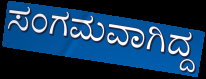
ಸಂಗಮವಾಗಿದ್ದ